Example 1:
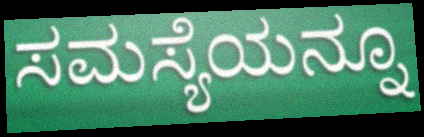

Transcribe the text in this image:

ಸಮಸ್ಯೆಯನ್ನೂ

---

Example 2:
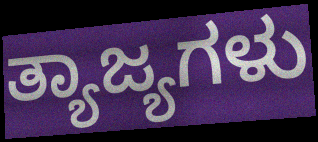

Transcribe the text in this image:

ತ್ಯಾಜ್ಯಗಳು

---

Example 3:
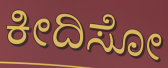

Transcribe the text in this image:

ಕೀದಿಸೋ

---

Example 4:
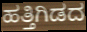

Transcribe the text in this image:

ಹತ್ತಿಗಿಡದ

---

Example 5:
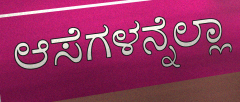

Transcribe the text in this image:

ಆಸೆಗಳನ್ನೆಲ್ಲಾ